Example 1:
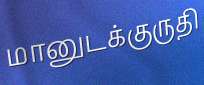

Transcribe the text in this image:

மானுடக்குருதி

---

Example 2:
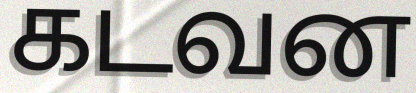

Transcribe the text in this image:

கடவன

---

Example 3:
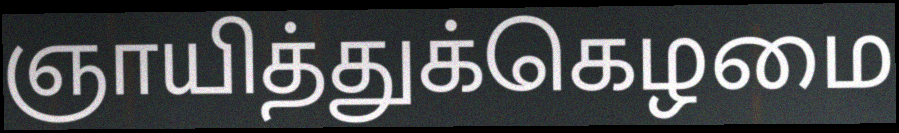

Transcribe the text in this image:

ஞாயித்துக்கெழமை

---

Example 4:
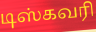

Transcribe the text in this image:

டிஸ்கவரி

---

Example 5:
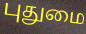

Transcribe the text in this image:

புதுமை